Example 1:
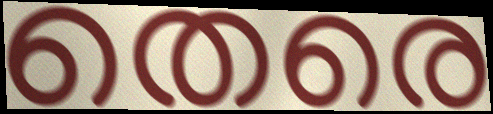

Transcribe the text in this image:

തെരെ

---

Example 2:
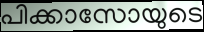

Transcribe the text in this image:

പിക്കാസോയുടെ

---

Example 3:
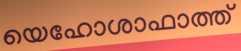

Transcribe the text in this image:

യെഹോശാഫാത്ത്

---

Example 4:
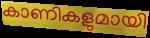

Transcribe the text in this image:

കാണികളുമായി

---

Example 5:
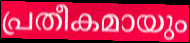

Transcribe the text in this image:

പ്രതീകമായും